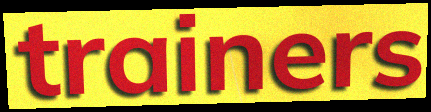
trainers